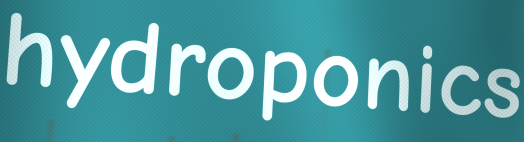
hydroponics